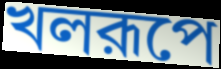
খলরূপে